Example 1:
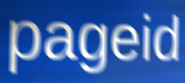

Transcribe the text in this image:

pageid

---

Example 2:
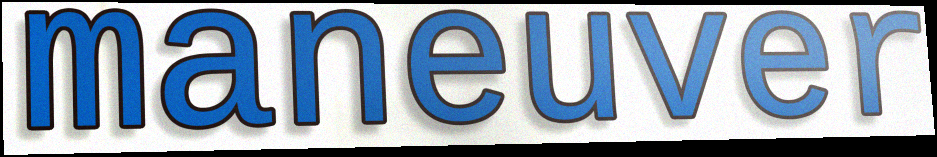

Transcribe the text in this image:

maneuver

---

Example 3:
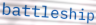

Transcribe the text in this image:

battleship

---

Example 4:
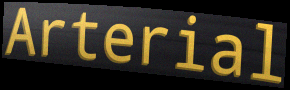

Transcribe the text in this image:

Arterial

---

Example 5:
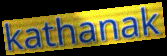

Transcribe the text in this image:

kathanak